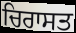
ਚਿਰਾਸਤ